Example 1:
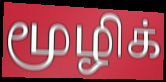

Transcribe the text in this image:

மூழிக்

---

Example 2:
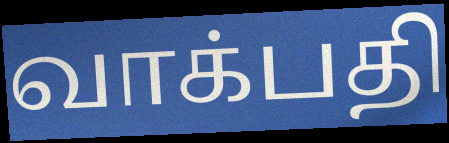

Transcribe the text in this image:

வாக்பதி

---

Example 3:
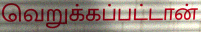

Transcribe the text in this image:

வெறுக்கப்பட்டான்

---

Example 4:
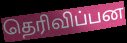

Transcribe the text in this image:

தெரிவிப்பன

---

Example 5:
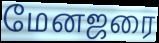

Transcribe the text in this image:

மேனஜரை